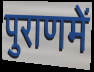
पुराणमें